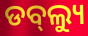
ଡବ୍‌ଲ୍ୟୁ